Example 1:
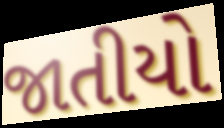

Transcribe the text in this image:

જાતીયો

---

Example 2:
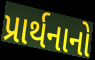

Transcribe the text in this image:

પ્રાર્થનાનો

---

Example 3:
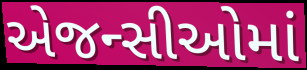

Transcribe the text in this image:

એજન્સીઓમાં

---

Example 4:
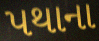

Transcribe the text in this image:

પથાના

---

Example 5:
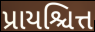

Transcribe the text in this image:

પ્રાયશ્ચિત્ત